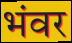
भंवर